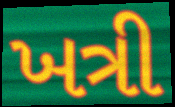
ખત્રી